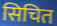
सिचित